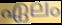
ഏലം